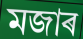
মজাৰ